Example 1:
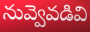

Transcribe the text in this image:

నువ్వెవడివి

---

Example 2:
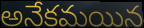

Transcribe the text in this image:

అనేకమయిన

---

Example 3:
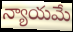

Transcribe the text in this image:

న్యాయమే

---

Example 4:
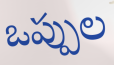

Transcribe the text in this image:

ఒప్పుల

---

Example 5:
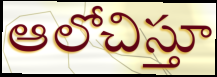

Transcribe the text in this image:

ఆలోచిస్తూ